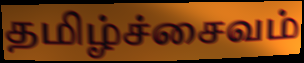
தமிழ்ச்சைவம்